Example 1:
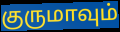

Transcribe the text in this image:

குருமாவும்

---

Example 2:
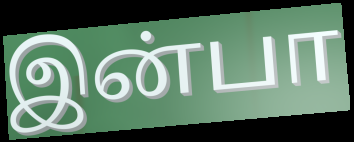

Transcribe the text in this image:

இன்பா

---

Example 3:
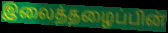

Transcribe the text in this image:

இலைத்தழைப்பின்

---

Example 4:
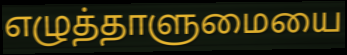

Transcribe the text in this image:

எழுத்தாளுமையை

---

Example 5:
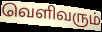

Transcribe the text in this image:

வெளிவரும்